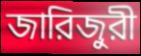
জারিজুরী